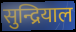
सुन्द्रियाल